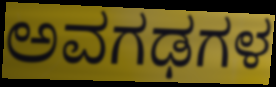
ಅವಗಢಗಳ